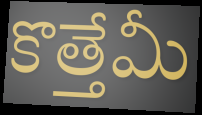
కొత్తేమీ